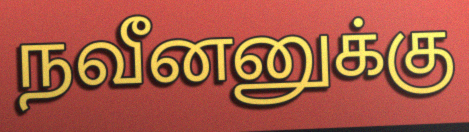
நவீனனுக்கு